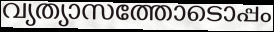
വ്യത്യാസത്തോടൊപ്പം